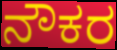
ನೌಕರ